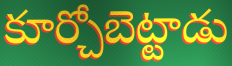
కూర్చోబెట్టాడు